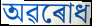
অৱৰোধ